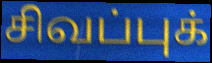
சிவப்புக்